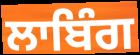
ਲਾਬਿੰਗ